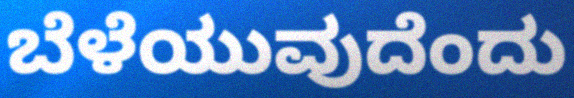
ಬೆಳೆಯುವುದೆಂದು